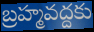
బ్రహ్మవద్దకు